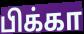
பிக்கா